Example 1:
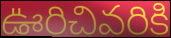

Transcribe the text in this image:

ఊరిచివరికి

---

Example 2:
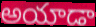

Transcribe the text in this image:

అయాడా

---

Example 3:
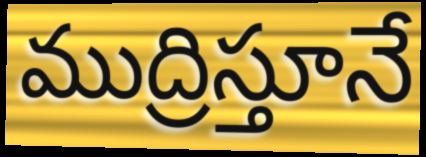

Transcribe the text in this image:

ముద్రిస్తూనే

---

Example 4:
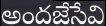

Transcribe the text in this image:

అందజేసేవి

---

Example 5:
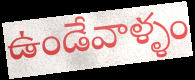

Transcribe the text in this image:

ఉండేవాళ్ళం